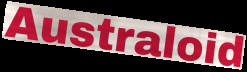
Australoid